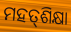
ମହତ୍‌ଶିକ୍ଷା